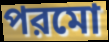
পরমো